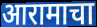
आरामाचा